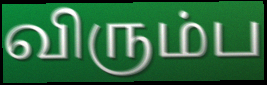
விரும்ப